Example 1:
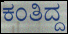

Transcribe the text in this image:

ಕಂತಿದ್ದ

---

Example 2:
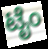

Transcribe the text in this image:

ಟೈಂ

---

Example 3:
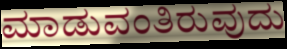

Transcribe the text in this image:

ಮಾಡುವಂತಿರುವುದು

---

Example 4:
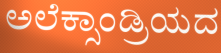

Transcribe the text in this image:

ಅಲೆಕ್ಸಾಂಡ್ರಿಯದ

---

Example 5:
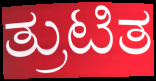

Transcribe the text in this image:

ತ್ರುಟಿತ